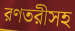
রণতরীসহ